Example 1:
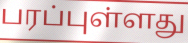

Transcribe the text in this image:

பரப்புள்ளது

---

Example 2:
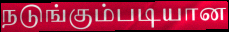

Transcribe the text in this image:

நடுங்கும்படியான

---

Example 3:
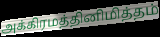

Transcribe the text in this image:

அக்கிரமத்தினிமித்தம்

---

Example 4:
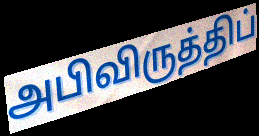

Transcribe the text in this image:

அபிவிருத்திப்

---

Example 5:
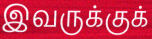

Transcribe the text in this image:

இவருக்குக்